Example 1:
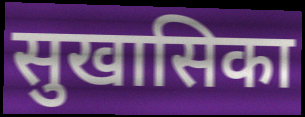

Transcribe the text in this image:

सुखासिका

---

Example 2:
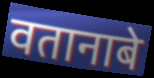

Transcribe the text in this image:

वतानाबे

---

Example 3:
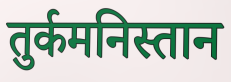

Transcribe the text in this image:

तुर्कमनिस्तान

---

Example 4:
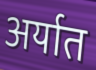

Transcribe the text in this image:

अर्यात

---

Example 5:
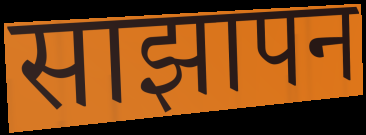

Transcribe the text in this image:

साझापन